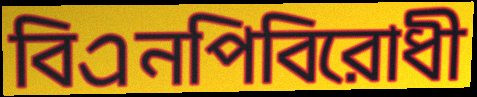
বিএনপিবিরোধী